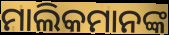
ମାଲିକମାନଙ୍କ